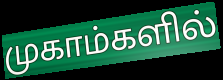
முகாம்களில்